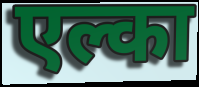
एल्का